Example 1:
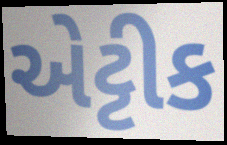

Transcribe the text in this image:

એટ્ટીક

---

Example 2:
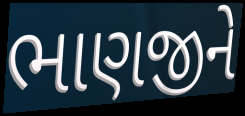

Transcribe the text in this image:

ભાણજીને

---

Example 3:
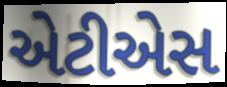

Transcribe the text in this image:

એટીએસ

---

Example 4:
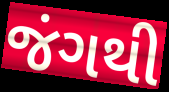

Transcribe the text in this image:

જંગથી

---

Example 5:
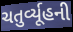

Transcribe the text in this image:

ચતુર્વ્યૂહની